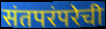
संतपरंपरेची